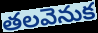
తలవెనుక